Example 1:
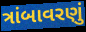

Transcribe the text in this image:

ત્રાંબાવરણું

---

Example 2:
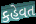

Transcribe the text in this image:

કહેવત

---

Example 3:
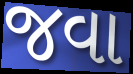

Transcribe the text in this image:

જવા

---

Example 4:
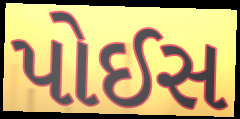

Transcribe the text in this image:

પોઈસ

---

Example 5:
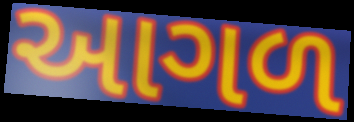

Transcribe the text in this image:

આગળ